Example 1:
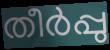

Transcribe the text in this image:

തീർപ്പു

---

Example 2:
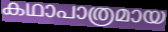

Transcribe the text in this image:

കഥാപാത്രമായ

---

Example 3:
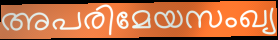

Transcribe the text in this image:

അപരിമേയസംഖ്യ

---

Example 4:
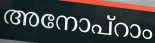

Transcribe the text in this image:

അനോപ്റാം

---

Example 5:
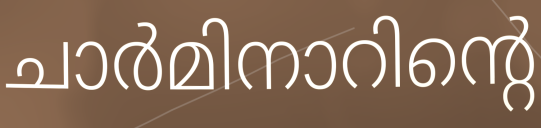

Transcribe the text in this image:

ചാർമിനാറിന്റെ